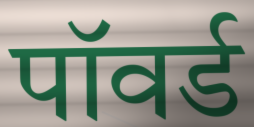
पॉवर्ड